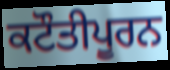
ਕਟੌਤੀਪੂਰਨ